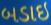
બડાઇ